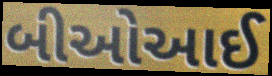
બીઓઆઈ